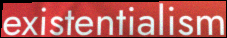
existentialism